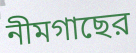
নীমগাছের